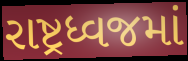
રાષ્ટ્રધ્વજમાં